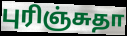
புரிஞ்சுதா